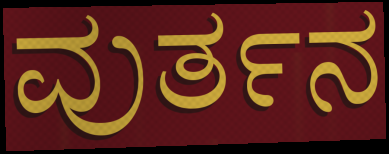
ವುರ್ತನ